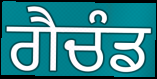
ਗੈਚੰਡ